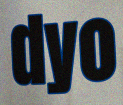
dyo